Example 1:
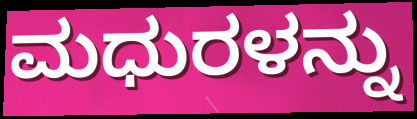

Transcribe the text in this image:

ಮಧುರಳನ್ನು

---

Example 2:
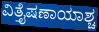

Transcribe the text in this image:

ವಿತ್ತೈಷಣಾಯಾಶ್ಚ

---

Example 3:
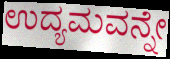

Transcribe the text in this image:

ಉದ್ಯಮವನ್ನೇ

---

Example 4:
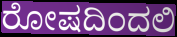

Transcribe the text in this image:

ರೋಷದಿಂದಲಿ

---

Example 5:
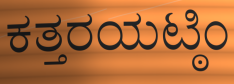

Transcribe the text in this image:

ಕತ್ತರಯಟ್ಠಿಂ